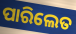
ପାରିଲେତ